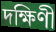
দক্ষিণী